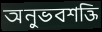
অনুভবশক্তি